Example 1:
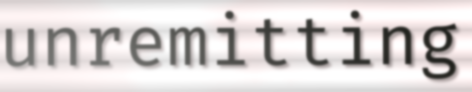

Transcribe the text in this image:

unremitting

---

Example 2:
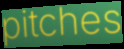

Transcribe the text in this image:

pitches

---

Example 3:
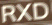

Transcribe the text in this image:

RXD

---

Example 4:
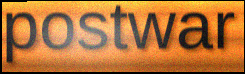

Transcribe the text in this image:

postwar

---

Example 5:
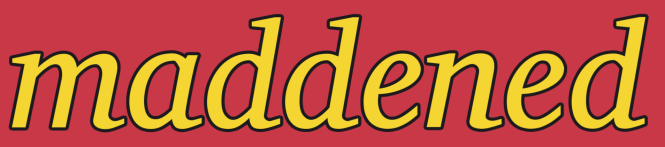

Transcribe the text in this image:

maddened